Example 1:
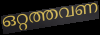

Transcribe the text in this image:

ഒറ്റത്തവണ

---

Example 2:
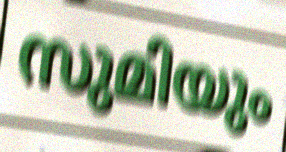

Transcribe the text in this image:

സുമിയും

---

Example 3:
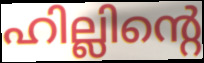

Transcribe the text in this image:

ഹില്ലിന്റെ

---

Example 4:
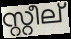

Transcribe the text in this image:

സ്റ്റീല്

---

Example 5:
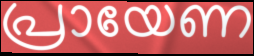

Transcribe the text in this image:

പ്രായേണ